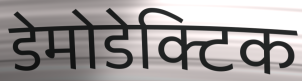
डेमोडेक्टिक